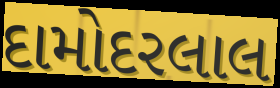
દામોદરલાલ